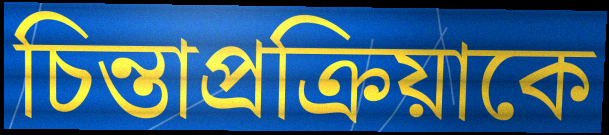
চিন্তাপ্রক্রিয়াকে